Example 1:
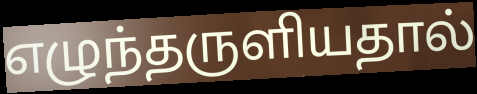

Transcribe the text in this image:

எழுந்தருளியதால்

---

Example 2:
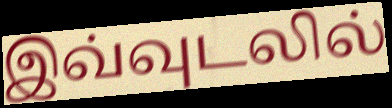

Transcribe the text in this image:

இவ்வுடலில்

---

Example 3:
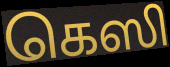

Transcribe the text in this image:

கெஸி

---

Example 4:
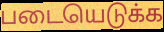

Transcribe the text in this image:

படையெடுக்க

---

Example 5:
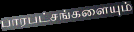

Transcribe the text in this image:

பாரபட்சங்களையும்